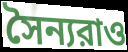
সৈন্যরাও